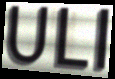
ULI